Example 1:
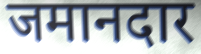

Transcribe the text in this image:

जमानदार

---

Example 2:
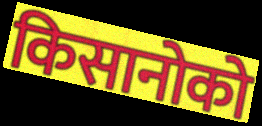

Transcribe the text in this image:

किसानोको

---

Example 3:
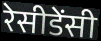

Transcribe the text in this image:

रेसीडेंसी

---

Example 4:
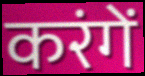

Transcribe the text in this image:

करंगें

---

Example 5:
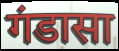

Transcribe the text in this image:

गंडासा